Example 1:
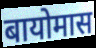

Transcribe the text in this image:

बायोमास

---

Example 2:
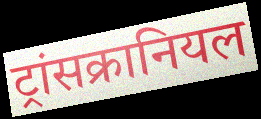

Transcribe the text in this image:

ट्रांसक्रानियल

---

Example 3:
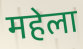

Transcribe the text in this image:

महेला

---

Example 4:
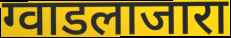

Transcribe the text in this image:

ग्वाडलाजारा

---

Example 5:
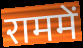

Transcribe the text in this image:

राममें